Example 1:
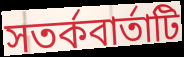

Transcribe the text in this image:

সতর্কবার্তাটি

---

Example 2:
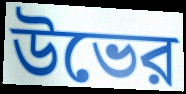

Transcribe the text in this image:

উভের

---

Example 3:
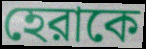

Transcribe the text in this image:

হেরাকে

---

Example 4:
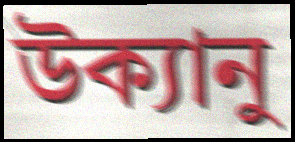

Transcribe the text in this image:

উক্যানু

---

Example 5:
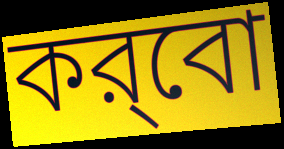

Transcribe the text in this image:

কর্‌বো